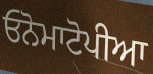
ਓਨੋਮਾਟੋਪੀਆ